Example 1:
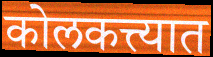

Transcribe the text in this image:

कोलकत्त्यात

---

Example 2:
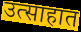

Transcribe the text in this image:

उत्साहात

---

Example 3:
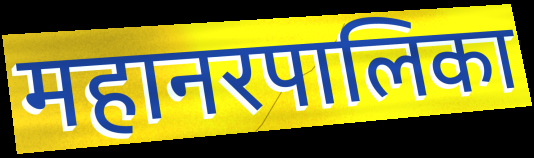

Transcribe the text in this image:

महानरपालिका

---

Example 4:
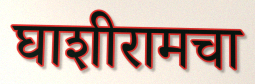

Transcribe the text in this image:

घाशीरामचा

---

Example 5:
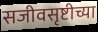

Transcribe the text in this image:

सजीवसृष्टीच्या